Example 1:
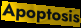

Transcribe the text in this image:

Apoptosis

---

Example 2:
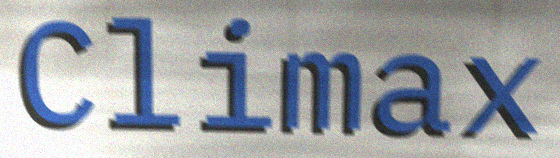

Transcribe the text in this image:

Climax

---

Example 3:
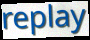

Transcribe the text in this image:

replay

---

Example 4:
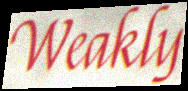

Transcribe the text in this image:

Weakly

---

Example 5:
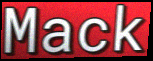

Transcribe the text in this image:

Mack